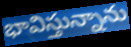
భావిస్తున్నాను